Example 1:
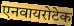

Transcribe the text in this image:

एनवायरोटेक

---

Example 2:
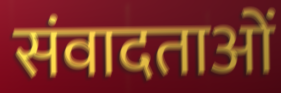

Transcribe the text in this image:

संवादताओं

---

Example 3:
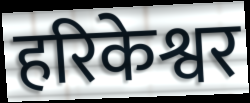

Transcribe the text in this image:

हरिकेश्वर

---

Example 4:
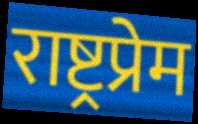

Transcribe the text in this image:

राष्ट्रप्रेम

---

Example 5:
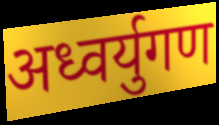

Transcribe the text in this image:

अध्वर्युगण